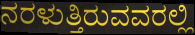
ನರಳುತ್ತಿರುವವರಲ್ಲಿ